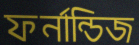
ফর্নান্ডিজ